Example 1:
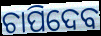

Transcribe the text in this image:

ଚାପିଦେବ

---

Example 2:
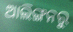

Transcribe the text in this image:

ଆଲିଙ୍ଗନରୁ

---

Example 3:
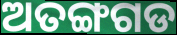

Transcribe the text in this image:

ଅତଙ୍ଗଗଡ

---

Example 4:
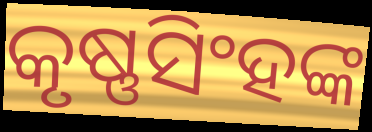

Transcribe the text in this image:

କୃଷ୍ଣସିଂହଙ୍କ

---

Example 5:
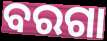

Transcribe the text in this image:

ବରଗା